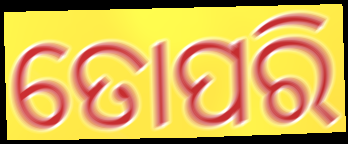
ତୋପରି